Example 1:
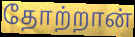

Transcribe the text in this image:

தோற்றான்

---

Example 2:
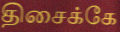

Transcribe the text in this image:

திசைக்கே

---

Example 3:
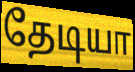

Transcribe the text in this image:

தேடியா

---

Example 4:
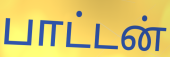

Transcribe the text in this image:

பாட்டன்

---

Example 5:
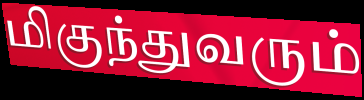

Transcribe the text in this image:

மிகுந்துவரும்